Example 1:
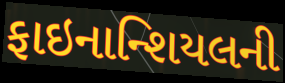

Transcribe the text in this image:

ફાઇનાન્શિયલની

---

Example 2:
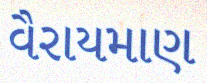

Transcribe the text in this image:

વૈરાયમાણ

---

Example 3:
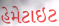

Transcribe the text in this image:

હેમેટાઇટ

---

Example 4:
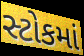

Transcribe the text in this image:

સ્ટોકમાં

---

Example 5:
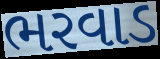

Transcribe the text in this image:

ભરવાડ